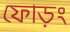
ফোড়ং